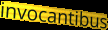
invocantibus